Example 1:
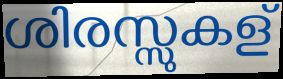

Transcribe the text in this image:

ശിരസ്സുകള്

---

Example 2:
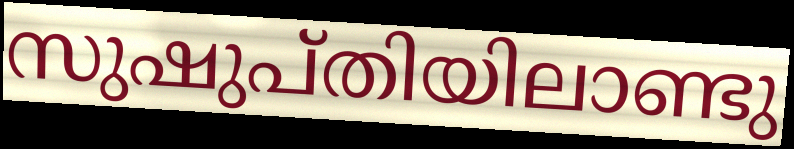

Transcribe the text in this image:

സുഷുപ്തിയിലാണ്ടു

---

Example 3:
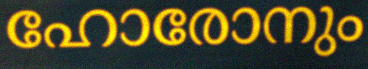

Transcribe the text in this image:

ഹോരോനും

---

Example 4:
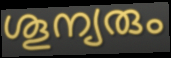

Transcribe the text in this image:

ശൂന്യരും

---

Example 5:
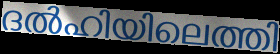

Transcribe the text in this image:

ദൽഹിയിലെത്തി